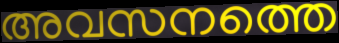
അവസനത്തെ